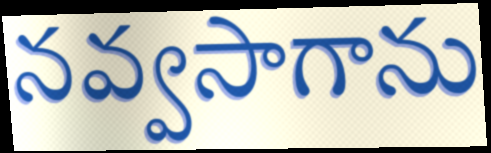
నవ్వసాగాను